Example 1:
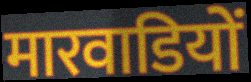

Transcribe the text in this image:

मारवाडियों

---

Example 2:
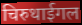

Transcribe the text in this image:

चिरुथाईगल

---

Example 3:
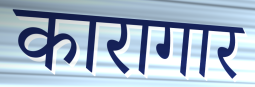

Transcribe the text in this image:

कारागार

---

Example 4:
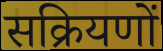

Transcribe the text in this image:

सक्रियणों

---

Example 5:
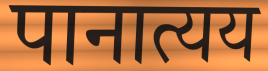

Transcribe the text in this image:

पानात्यय